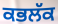
ਕਭਲੱਕ